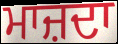
ਮਾਜ਼ਦਾ